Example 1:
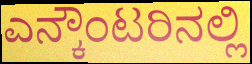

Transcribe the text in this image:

ಎನ್ಕೌಂಟರಿನಲ್ಲಿ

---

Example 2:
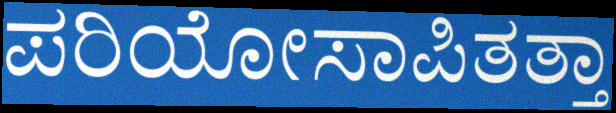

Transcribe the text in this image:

ಪರಿಯೋಸಾಪಿತತ್ತಾ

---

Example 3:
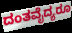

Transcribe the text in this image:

ದಂತವೈದ್ಯರೂ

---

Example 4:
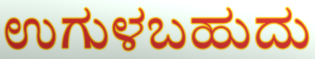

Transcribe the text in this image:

ಉಗುಳಬಹುದು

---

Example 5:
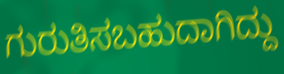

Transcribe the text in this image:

ಗುರುತಿಸಬಹುದಾಗಿದ್ದು